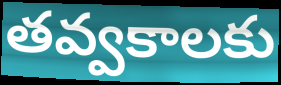
తవ్వకాలకు